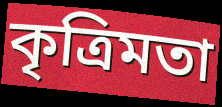
কৃত্রিমতা